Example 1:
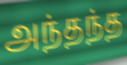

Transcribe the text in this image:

அந்தந்த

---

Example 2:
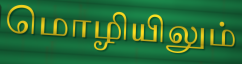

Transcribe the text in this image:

மொழியிலும்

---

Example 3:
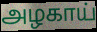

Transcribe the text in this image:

அழகாய்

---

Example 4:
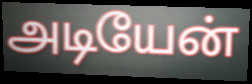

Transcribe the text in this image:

அடியேன்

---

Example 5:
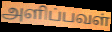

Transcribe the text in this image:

அளிப்பவள்